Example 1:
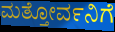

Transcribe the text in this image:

ಮತ್ತೋರ್ವನಿಗೆ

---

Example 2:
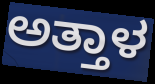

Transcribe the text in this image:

ಅತ್ತಾಳ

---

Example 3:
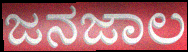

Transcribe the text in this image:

ಜನಜಾಲ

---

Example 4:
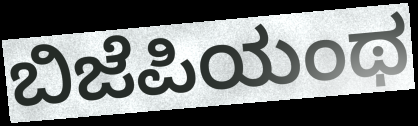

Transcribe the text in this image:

ಬಿಜೆಪಿಯಂಥ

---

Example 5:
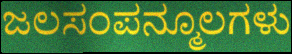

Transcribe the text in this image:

ಜಲಸಂಪನ್ಮೂಲಗಳು